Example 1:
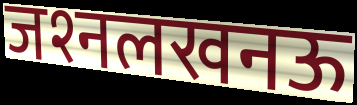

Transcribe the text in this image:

जश्नलखनऊ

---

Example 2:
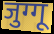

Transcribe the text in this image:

जुग्गू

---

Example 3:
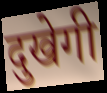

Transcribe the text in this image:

दुखेगी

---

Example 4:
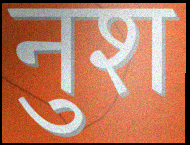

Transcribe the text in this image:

नुश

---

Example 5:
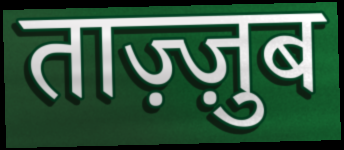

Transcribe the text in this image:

ताज़्ज़ुब